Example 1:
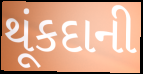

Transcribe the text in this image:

થૂંકદાની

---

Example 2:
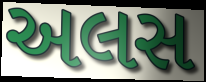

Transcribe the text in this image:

અલસ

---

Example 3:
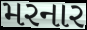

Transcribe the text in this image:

મરનાર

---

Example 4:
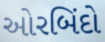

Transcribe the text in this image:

ઓરબિંદો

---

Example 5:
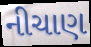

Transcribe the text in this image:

નીચાણ